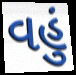
વહું